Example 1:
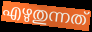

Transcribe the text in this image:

എഴുതുന്നത്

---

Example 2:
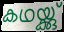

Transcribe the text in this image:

കഥയ്ക്കു്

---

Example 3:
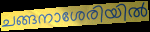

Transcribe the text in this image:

ചങ്ങനാശേരിയിൽ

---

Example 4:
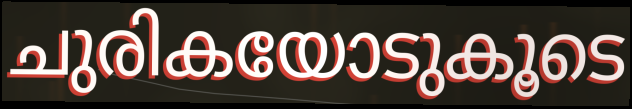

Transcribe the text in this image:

ചുരികയോടുകൂടെ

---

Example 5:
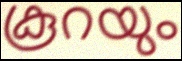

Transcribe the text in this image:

കൂറയും